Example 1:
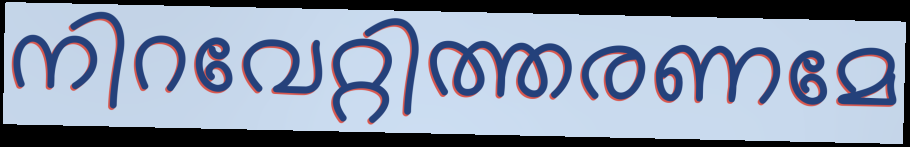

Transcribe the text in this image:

നിറവേറ്റിത്തരണമേ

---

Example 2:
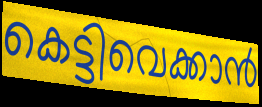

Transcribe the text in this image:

കെട്ടിവെക്കാൻ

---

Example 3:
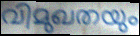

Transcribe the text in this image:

വിമുഖതയും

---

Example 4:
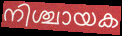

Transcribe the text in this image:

നിശ്ചായക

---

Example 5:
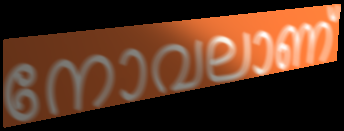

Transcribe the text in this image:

നോവലാണ്